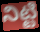
నిట్టి